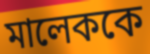
মালেককে